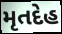
મૃતદેહ